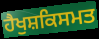
ਹੈਖੁਸ਼ਕਿਸਮਤ